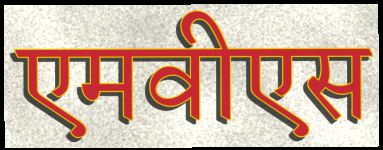
एमवीएस